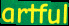
artful